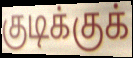
குடிக்குக்